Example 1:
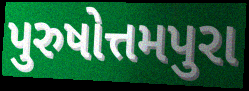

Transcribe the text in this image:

પુરુષોત્તમપુરા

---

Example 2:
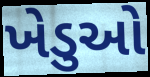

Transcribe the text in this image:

ખેડુઓ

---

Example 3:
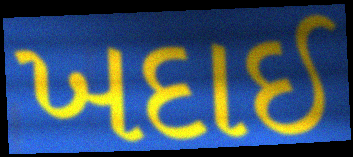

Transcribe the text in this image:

ખદાઈ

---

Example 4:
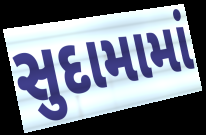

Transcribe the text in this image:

સુદામામાં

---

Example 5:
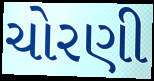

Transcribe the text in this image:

ચોરણી